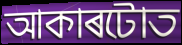
আকাৰটোত